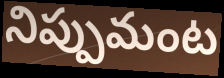
నిప్పుమంట